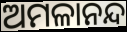
ଅମଳାନନ୍ଦ